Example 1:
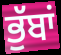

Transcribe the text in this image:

ਭੁੱਬਾਂ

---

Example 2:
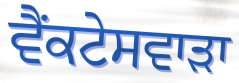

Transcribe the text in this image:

ਵੈਂਕਟੇਸਵਾੜਾ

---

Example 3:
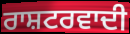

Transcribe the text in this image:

ਰਾਸ਼ਟਰਵਾਦੀ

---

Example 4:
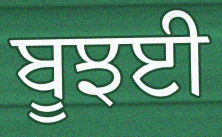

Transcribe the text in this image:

ਬੂਝਈ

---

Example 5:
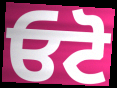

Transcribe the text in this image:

ਓਟੋ